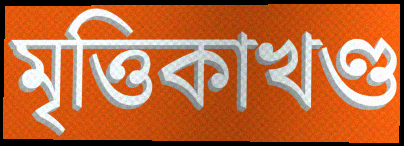
মৃত্তিকাখণ্ড